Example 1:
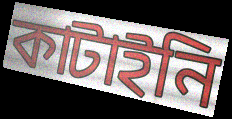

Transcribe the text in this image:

কাটাইনি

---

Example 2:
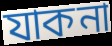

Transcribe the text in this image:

যাকনা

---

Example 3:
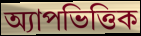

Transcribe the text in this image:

অ্যাপভিত্তিক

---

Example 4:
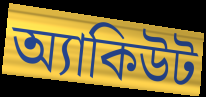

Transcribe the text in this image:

অ্যাকিউট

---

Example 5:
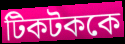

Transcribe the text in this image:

টিকটককে